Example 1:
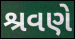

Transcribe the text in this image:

શ્રવણે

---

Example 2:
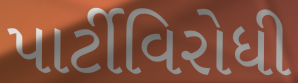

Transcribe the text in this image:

પાર્ટીવિરોધી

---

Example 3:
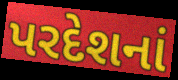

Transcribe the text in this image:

પરદેશનાં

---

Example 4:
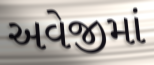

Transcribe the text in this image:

અવેજીમાં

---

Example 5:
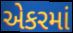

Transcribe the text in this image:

એકરમાં